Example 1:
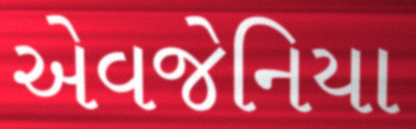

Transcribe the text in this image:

એવજેનિયા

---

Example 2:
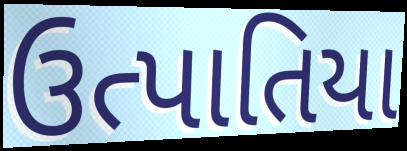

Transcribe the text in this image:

ઉત્પાતિયા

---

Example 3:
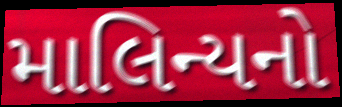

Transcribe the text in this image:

માલિન્યનો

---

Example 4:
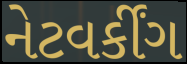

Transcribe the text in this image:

નેટવર્કીંગ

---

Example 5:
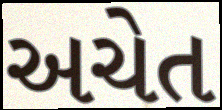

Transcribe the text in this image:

અચેત